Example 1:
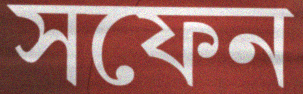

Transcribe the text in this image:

সফেন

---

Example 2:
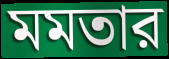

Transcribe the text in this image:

মমতার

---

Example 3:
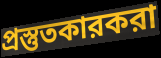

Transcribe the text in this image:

প্রস্তুতকারকরা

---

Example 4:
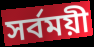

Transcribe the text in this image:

সর্বময়ী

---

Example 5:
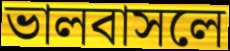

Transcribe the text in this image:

ভালবাসলে